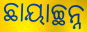
ଛାୟାଚ୍ଛନ୍ନ